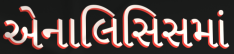
એનાલિસિસમાં